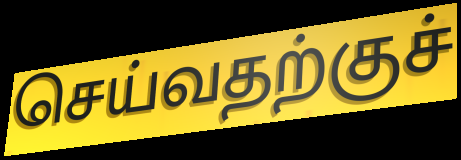
செய்வதற்குச்